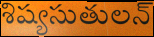
శిష్యసుతులన్